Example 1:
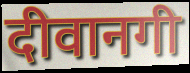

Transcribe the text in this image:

दीवानगी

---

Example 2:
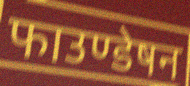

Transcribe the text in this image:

फाउण्डेषन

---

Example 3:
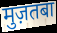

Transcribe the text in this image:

मुज़तबा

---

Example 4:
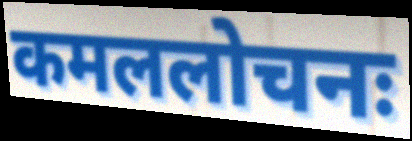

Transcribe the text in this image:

कमललोचनः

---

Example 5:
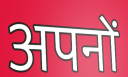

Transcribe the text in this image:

अपनों